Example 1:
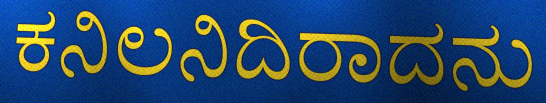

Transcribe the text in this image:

ಕನಿಲನಿದಿರಾದನು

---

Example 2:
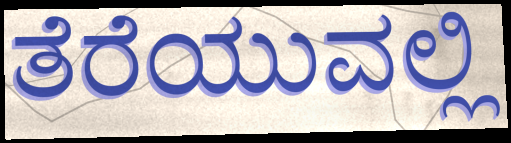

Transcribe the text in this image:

ತೆರೆಯುವಲ್ಲಿ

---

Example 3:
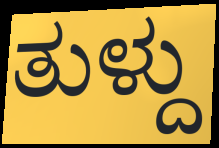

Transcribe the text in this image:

ತುಳ್ದು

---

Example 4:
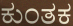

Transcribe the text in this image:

ಕುಂತಕ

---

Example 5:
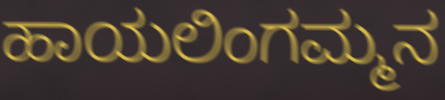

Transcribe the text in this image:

ಹಾಯಲಿಂಗಮ್ಮನ